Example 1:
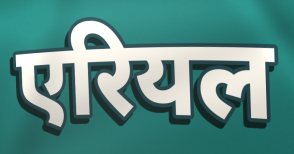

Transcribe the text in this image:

एरियल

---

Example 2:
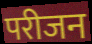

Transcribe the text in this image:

परीजन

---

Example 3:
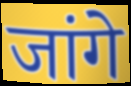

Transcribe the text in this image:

जांगे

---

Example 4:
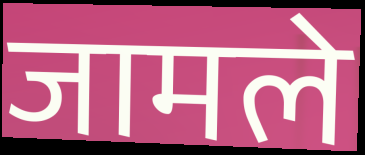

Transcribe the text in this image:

जामले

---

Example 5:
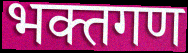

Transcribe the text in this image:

भक्तगण